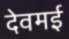
देवमई